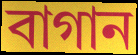
বাগান